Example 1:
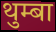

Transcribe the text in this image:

थुम्बा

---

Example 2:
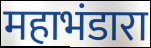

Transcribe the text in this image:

महाभंडारा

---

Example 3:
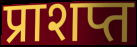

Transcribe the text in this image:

प्राशप्त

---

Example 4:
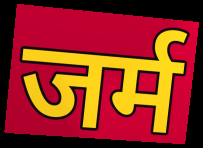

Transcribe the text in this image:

जर्म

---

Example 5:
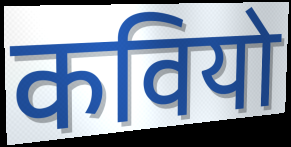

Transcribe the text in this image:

कवियो